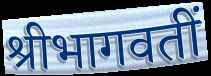
श्रीभागवतीं